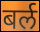
बर्ल